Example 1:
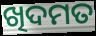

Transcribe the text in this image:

ଖିଦମତ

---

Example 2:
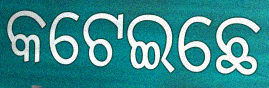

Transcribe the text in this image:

କଟେଇଛେ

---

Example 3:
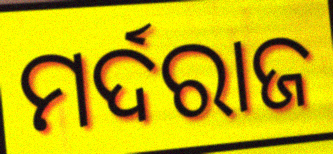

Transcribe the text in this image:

ମର୍ଦରାଜ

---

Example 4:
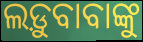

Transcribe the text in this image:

ଲଡ଼ୁବାବାଙ୍କୁ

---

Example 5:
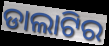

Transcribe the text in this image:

ଡାଲାଟିର